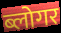
ब्लोगर